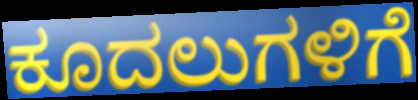
ಕೂದಲುಗಳಿಗೆ